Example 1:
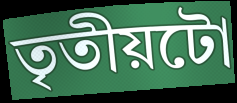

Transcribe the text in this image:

তৃতীয়টো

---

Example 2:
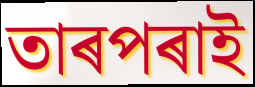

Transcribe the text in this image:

তাৰপৰাই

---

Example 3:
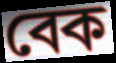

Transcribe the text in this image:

বেক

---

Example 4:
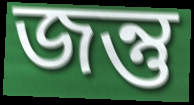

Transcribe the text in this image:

জন্তু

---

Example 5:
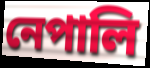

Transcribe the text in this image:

নেপালি